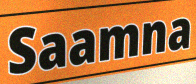
Saamna